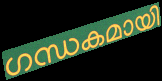
ഗന്ധകമായി